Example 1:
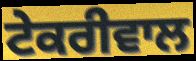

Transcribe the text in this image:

ਟੇਕਰੀਵਾਲ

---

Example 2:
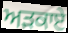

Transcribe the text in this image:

ਅੜਕਾਏ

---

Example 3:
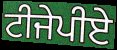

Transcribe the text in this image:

ਟੀਜੇਪੀਏ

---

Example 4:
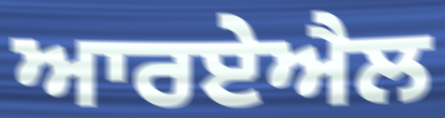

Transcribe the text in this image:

ਆਰਏਐਲ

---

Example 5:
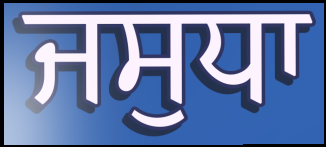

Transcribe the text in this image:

ਜਸੁਧਾ